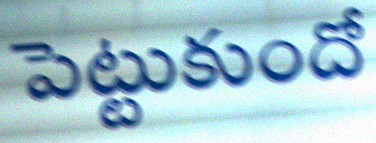
పెట్టుకుందో